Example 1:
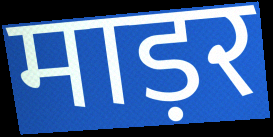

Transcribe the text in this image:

माड़र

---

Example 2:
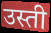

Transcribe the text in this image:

उस्ती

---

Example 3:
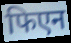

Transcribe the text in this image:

फिएन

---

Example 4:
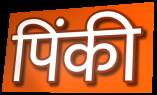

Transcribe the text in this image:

पिंकी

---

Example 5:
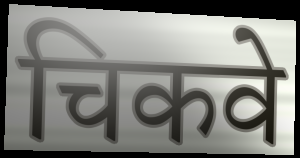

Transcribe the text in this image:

चिकवे